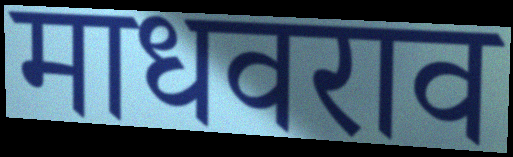
माधवराव